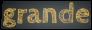
grande